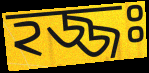
হজ্জঃ